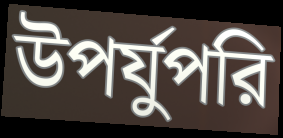
উপর্যুপরি